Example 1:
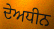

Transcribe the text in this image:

ਦੇਅਧੀਨ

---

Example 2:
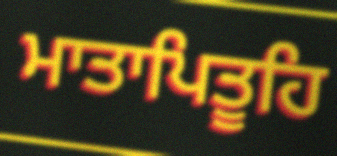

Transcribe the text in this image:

ਮਾਤਾਪਿਤੂਹਿ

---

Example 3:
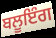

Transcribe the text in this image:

ਬਲੂਇੰਗ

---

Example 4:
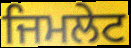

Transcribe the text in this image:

ਜਿਮਲੇਟ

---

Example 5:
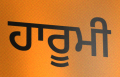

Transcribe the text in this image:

ਹਾਰੂਮੀ